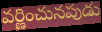
వర్ణించునపుడు